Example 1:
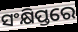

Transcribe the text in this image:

ସଂକ୍ଷିପ୍ତରେ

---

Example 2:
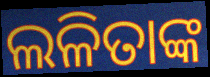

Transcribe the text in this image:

ଲଳିତାଙ୍କ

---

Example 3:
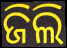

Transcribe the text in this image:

ଜିଲି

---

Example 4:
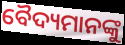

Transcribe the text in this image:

ବୈଦ୍ୟମାନଙ୍କୁ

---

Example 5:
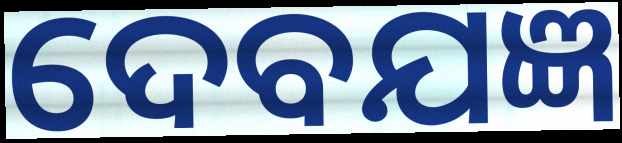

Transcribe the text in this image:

ଦେବଯଜ୍ଞ